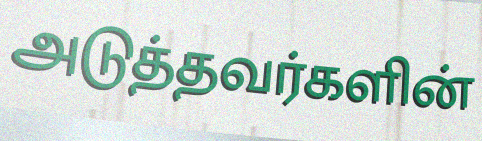
அடுத்தவர்களின்